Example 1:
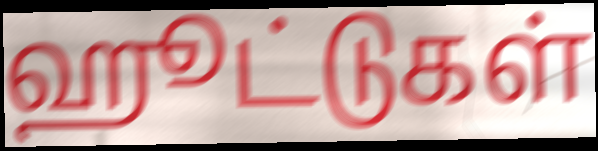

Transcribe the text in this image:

ஹூட்டுகள்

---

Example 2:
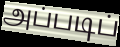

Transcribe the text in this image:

அப்படிப்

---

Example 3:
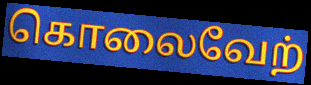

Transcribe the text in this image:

கொலைவேற்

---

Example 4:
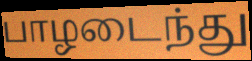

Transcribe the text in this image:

பாழடைந்து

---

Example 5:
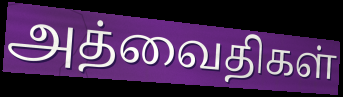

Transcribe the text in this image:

அத்வைதிகள்